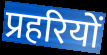
प्रहरियों